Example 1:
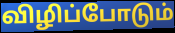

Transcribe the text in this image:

விழிப்போடும்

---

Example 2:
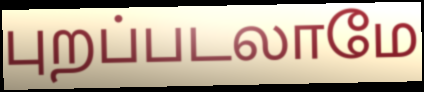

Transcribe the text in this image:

புறப்படலாமே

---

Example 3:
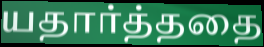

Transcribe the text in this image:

யதார்த்ததை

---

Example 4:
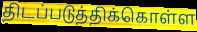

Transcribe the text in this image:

திடப்படுத்திக்கொள்ள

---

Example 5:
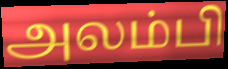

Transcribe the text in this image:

அலம்பி